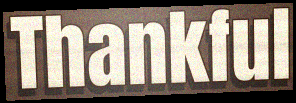
Thankful